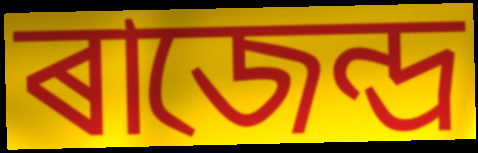
ৰাজেন্দ্ৰ